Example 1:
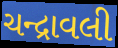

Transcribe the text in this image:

ચન્દ્રાવલી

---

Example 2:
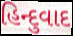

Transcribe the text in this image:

હિન્દુવાદ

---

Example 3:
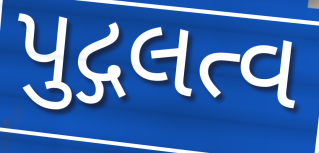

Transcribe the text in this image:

પુદ્ગલત્વ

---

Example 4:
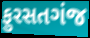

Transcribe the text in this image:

ફુરસતગંજ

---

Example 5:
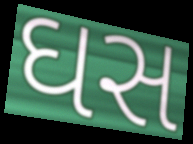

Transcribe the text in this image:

ઘસ